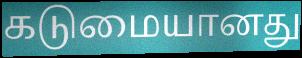
கடுமையானது